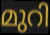
മുറി